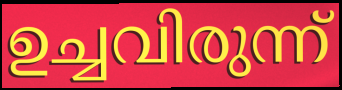
ഉച്ചവിരുന്ന്